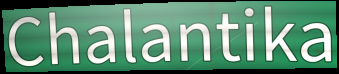
Chalantika